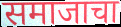
समाजाचा